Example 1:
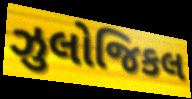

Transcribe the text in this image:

ઝુલોજિકલ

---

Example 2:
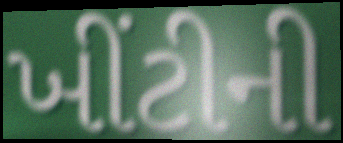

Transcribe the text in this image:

ખીંટીની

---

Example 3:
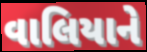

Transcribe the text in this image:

વાલિયાને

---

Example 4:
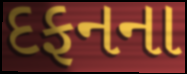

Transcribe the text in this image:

દફનના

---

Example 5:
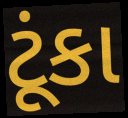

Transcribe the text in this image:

ટૂંકા